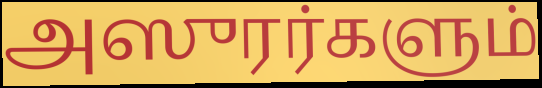
அஸுரர்களும்